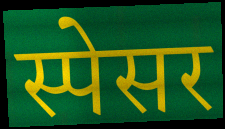
स्पेसर